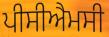
ਪੀਸੀਐਮਸੀ